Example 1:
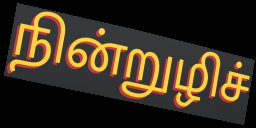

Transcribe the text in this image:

நின்றுழிச்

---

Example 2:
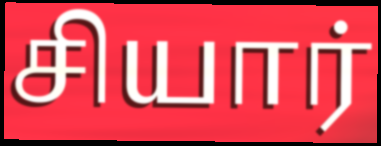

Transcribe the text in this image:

சியார்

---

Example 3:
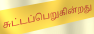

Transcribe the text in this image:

சுட்டப்பெறுகின்றது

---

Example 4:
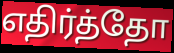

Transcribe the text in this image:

எதிர்த்தோ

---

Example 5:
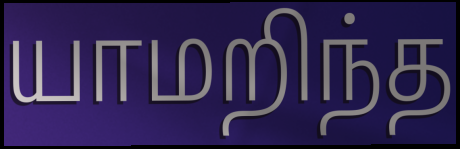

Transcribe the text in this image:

யாமறிந்த